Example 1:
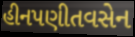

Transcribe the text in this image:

હીનપણીતવસેન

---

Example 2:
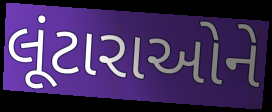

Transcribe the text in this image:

લૂંટારાઓને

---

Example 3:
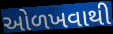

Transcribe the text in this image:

ઓળખવાથી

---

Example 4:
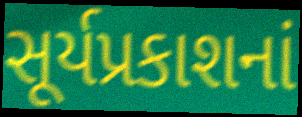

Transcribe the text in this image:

સૂર્યપ્રકાશનાં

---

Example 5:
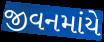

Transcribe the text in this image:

જીવનમાંયે